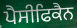
ਪੈਸੀਫਿਕੈਨ